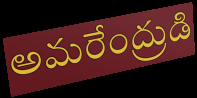
అమరేంద్రుడి